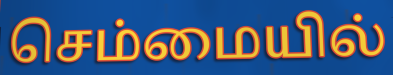
செம்மையில்